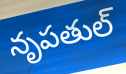
నృపతుల్